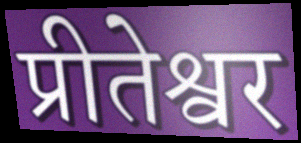
प्रीतेश्वर